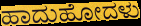
ಹಾದುಹೋದಳು